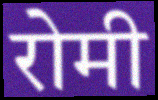
रोमी